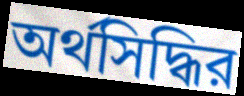
অর্থসিদ্ধির